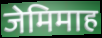
जेमिमाह